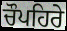
ਚੌਪਹਿਰੇ